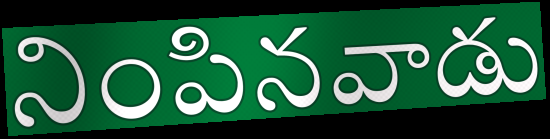
నింపినవాడు